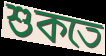
শুকতে